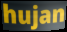
hujan